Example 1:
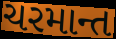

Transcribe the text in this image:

ચરમાન્ત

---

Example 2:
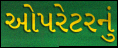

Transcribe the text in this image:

ઓપરેટરનું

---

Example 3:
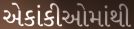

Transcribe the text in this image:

એકાંકીઓમાંથી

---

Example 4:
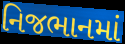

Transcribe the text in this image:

નિજભાનમાં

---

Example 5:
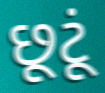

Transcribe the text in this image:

છૂટૂં